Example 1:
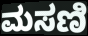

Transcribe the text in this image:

ಮಸಣಿ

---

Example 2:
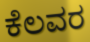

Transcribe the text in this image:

ಕೆಲವರ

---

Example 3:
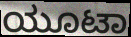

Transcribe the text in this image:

ಯೂಟಾ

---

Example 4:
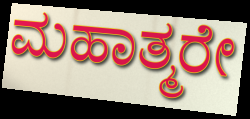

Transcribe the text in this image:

ಮಹಾತ್ಮರೇ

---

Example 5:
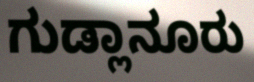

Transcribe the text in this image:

ಗುಡ್ಲಾನೂರು